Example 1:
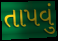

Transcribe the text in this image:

તાપવું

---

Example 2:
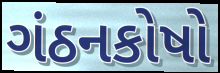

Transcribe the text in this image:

ગંઠનકોષો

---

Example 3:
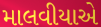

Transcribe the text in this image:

માલવીયાએ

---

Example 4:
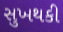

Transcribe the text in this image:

સુખથકી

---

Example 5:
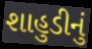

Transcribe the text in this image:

શાહુડીનું